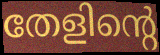
തേളിന്റെ